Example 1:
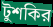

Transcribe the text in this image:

টুশকির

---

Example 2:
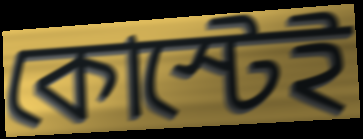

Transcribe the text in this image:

কোস্টেই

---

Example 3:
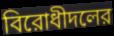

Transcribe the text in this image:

বিরোধীদলের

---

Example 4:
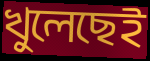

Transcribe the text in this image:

খুলেছেই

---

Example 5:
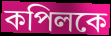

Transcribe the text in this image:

কপিলকে